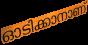
ഓടിക്കാനാണ്